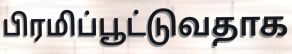
பிரமிப்பூட்டுவதாக